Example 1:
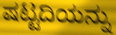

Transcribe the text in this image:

ಷಟ್ಟದಿಯನ್ನು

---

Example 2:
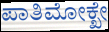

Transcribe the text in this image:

ಪಾತಿಮೋಕ್ಖೇ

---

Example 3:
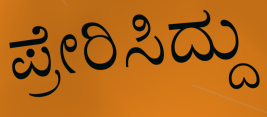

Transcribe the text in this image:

ಪ್ರೇರಿಸಿದ್ದು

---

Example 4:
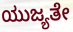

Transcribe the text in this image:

ಯುಜ್ಯತೇ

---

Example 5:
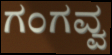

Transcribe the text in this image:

ಗಂಗವ್ವ